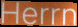
Herrn